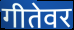
गीतेवर